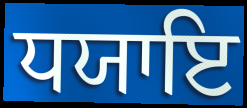
ਧਯਾਇ